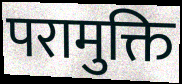
परामुक्ति